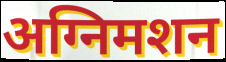
अग्निमशन